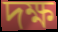
দক্ষ